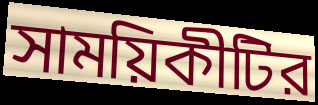
সাময়িকীটির